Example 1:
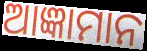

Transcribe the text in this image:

ଆଜ୍ଞାମାନ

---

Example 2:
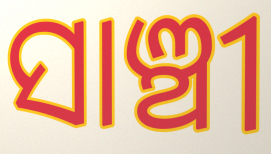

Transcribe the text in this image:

ସାଞ୍ଚୀ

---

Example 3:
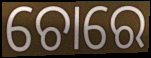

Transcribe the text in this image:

ଚୋରେ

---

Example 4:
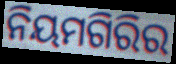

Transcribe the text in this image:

ନିୟମଗିରିର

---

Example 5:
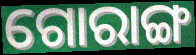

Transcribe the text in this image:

ଗୋରାଙ୍ଗ